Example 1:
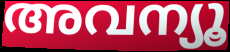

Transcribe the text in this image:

അവന്യൂ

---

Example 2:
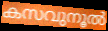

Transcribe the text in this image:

കസവുനൂൽ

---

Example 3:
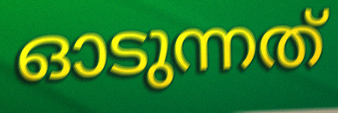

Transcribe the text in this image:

ഓടുന്നത്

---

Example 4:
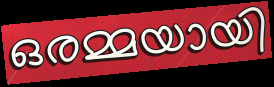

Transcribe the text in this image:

ഒരമ്മയായി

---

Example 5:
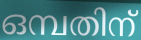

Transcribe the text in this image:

ഒമ്പതിന്